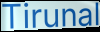
Tirunal